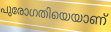
പുരോഗതിയെയാണ്